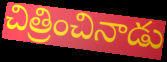
చిత్రించినాడు